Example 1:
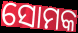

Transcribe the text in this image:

ସୋମକ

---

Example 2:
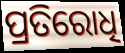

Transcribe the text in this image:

ପ୍ରତିରୋଧି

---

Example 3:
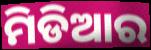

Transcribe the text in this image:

ମିଡିଆର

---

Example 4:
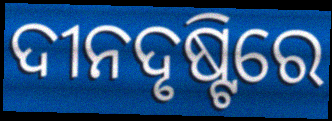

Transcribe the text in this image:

ଦୀନଦୃଷ୍ଟିରେ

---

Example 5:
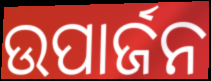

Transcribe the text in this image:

ଉପାର୍ଜନ